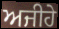
ਅਜੀਹੇ